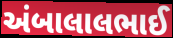
અંબાલાલભાઈ